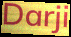
Darji